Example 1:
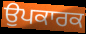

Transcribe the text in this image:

ਉਪਕਾਰਕ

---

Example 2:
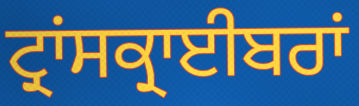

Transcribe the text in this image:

ਟ੍ਰਾਂਸਕ੍ਰਾਈਬਰਾਂ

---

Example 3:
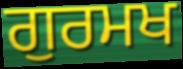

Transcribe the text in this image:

ਗੁਰਮਖ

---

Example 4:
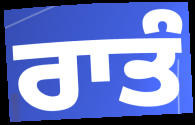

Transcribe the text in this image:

ਰਾਤੰ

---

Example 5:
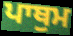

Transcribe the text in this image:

ਪਾਥੁਮ